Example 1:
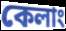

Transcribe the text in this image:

কেলাং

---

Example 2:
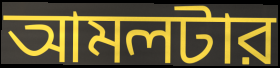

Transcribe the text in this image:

আমলটার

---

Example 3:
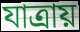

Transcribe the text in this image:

যাত্রায়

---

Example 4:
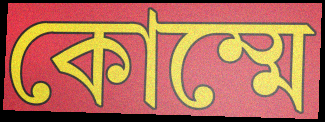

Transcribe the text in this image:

কোম্মে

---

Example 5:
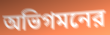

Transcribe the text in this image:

অভিগমনের